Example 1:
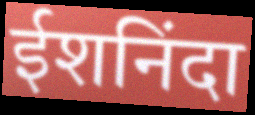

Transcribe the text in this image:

ईशनिंदा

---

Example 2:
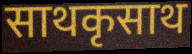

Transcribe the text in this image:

साथकृसाथ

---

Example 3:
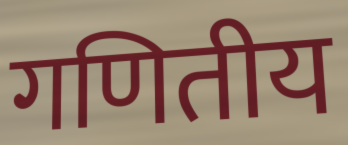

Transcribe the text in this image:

गणितीय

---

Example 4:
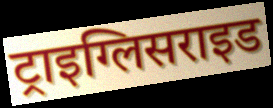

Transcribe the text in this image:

ट्राइग्लिसराइड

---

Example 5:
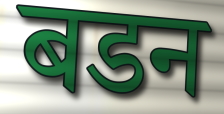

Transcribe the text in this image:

बडन